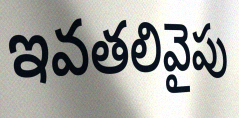
ఇవతలివైపు